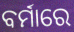
ବର୍ମାରେ